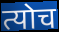
त्योच